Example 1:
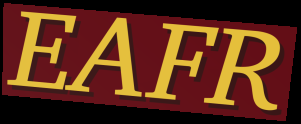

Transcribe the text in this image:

EAFR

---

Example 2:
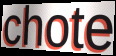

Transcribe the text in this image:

chote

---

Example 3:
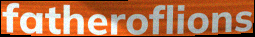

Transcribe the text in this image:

fatheroflions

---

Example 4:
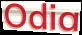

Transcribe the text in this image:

Odia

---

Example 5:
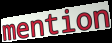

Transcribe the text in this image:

mention